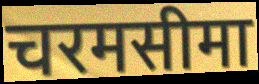
चरमसीमा